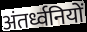
अंतर्ध्वनियों